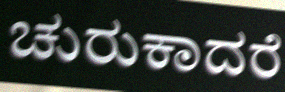
ಚುರುಕಾದರೆ